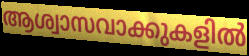
ആശ്വാസവാക്കുകളിൽ